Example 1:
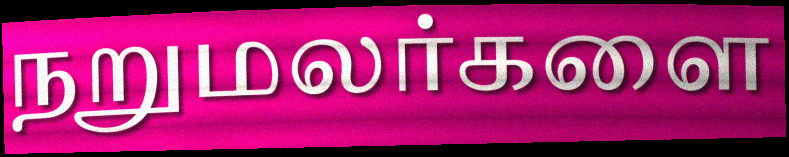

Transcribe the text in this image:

நறுமலர்களை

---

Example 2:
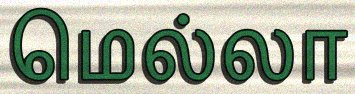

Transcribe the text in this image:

மெல்லா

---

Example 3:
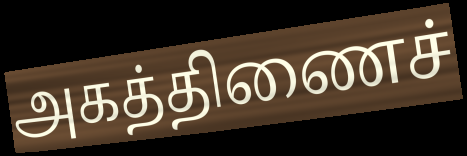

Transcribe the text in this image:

அகத்திணைச்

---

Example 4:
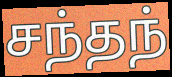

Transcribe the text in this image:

சந்தந்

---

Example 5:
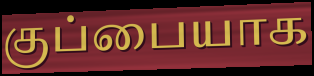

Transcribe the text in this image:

குப்பையாக